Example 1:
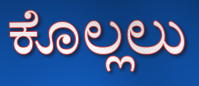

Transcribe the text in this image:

ಕೊಲ್ಲಲು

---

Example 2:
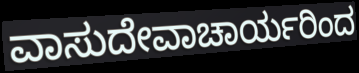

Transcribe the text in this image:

ವಾಸುದೇವಾಚಾರ್ಯರಿಂದ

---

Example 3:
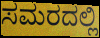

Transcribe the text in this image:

ಸಮರದಲ್ಲಿ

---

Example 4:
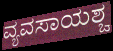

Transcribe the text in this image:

ವ್ಯವಸಾಯಶ್ಚ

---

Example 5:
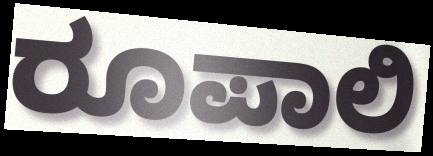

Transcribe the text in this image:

ರೂಪಾಲಿ